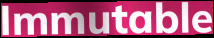
Immutable